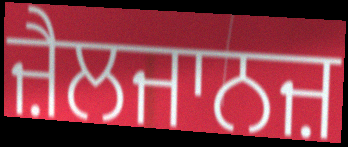
ਜ਼ੈਲਜਾਨਜ਼